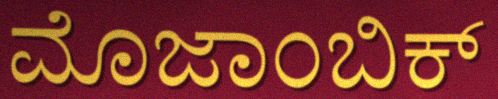
ಮೊಜಾಂಬಿಕ್